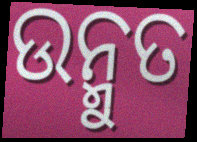
ଉନ୍ମୁତ